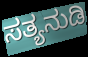
ಸತ್ಯನುಡಿ